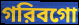
গরিবগো